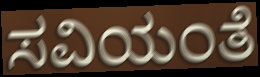
ಸವಿಯಂತೆ